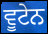
ਵੂਟੇਨ